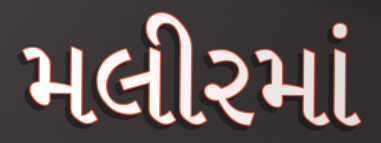
મલીરમાં